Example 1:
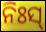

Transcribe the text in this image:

ନିଃସ୍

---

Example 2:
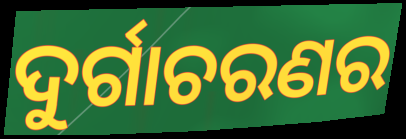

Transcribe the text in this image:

ଦୁର୍ଗାଚରଣର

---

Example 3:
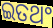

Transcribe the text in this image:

ଇତଥଂ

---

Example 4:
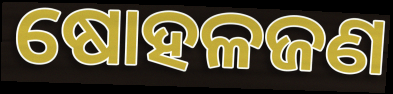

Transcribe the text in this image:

ଷୋହଳଜଣ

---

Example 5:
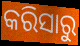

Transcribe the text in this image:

କରିସାରୁ